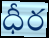
ధీర